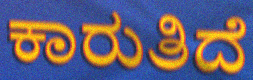
ಕಾರುತಿದೆ